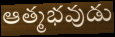
ఆత్మభవుడు